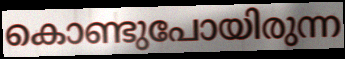
കൊണ്ടുപോയിരുന്ന